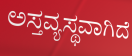
ಅಸ್ತವ್ಯಸ್ಥವಾಗಿದೆ